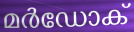
മർഡോക്